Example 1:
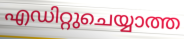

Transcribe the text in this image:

എഡിറ്റുചെയ്യാത്ത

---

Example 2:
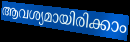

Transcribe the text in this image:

ആവശ്യമായിരിക്കാം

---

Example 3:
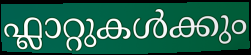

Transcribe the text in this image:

ഫ്ലാറ്റുകൾക്കും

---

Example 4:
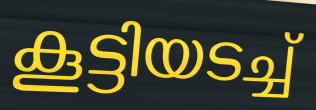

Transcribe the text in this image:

കൂട്ടിയടച്ച്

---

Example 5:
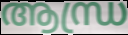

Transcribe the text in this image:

ആന്ധ്ര